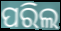
ପରିଲ